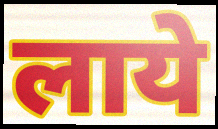
लाये